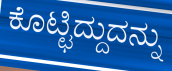
ಕೊಟ್ಟಿದ್ದುದನ್ನು